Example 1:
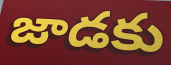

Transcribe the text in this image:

జాడకు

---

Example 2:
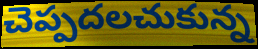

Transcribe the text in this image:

చెప్పదలచుకున్న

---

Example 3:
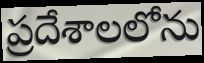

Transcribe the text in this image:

ప్రదేశాలలోను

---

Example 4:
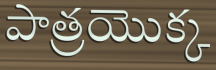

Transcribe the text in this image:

పాత్రయొక్క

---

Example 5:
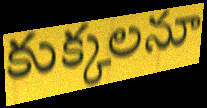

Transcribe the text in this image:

కుక్కలనూ